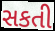
સકતી